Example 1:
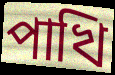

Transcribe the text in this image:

পাখি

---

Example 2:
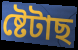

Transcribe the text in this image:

ষ্টেটাছ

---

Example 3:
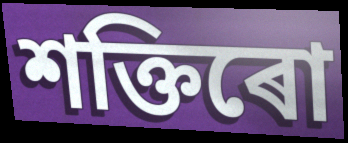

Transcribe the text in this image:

শক্তিৰো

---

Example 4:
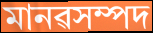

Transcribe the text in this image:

মানৱসম্পদ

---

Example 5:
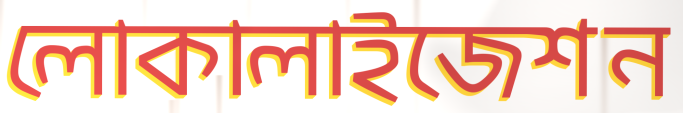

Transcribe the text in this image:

লোকালাইজেশন